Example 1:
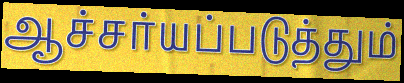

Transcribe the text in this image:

ஆச்சர்யப்படுத்தும்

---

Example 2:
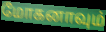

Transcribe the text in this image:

மோகனாவும்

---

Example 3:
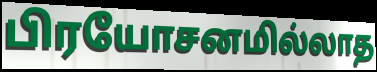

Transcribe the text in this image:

பிரயோசனமில்லாத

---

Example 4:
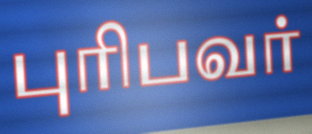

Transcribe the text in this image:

புரிபவர்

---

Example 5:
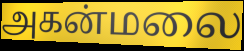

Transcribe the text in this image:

அகன்மலை